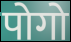
पोगो